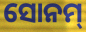
ସୋନମ୍